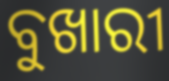
ବୁଖାରୀ